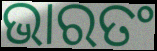
ଭାରତଂ